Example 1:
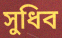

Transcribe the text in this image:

সুধিব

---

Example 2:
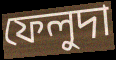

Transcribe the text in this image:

ফেলুদা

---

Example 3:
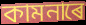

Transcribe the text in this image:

কামনাৰে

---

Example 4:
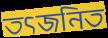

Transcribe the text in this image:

তৎজনিত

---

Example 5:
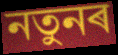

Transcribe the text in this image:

নতুনৰ